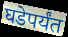
घडेपर्यंत